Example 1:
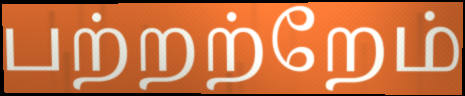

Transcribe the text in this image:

பற்றற்றேம்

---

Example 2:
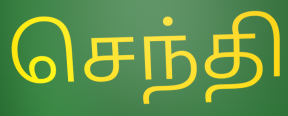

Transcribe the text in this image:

செந்தி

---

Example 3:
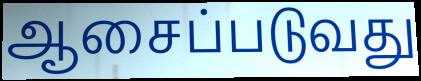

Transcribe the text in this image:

ஆசைப்படுவது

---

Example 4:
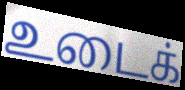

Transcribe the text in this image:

உடைக்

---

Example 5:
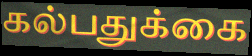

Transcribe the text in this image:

கல்பதுக்கை